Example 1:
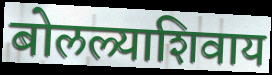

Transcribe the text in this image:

बोलल्याशिवाय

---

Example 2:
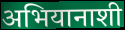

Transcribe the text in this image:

अभियानाशी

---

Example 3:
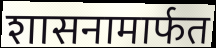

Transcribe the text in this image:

शासनामार्फत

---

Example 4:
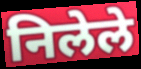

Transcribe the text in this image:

निलेले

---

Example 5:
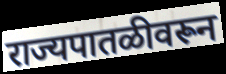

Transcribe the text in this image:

राज्यपातळीवरून